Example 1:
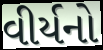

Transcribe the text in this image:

વીર્યનો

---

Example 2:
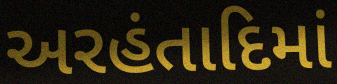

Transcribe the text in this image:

અરહંતાદિમાં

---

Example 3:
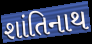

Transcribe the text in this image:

શાંતિનાથ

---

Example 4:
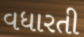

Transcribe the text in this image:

વધારતી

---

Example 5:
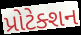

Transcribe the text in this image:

પ્રોટેક્શન